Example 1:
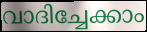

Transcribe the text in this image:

വാദിച്ചേക്കാം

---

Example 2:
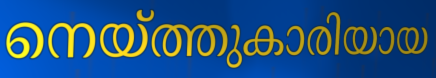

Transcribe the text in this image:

നെയ്ത്തുകാരിയായ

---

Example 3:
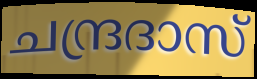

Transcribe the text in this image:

ചന്ദ്രദാസ്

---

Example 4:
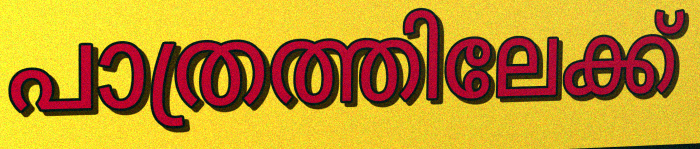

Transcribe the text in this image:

പാത്രത്തിലേക്ക്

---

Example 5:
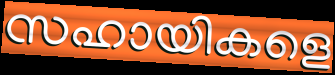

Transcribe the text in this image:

സഹായികളെ